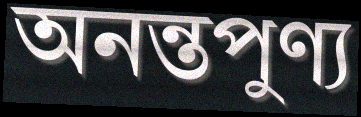
অনন্তপুণ্য